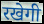
रखेगी